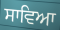
ਸਾਵਿਆ